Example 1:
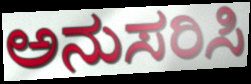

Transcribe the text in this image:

ಅನುಸರಿಸಿ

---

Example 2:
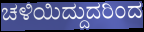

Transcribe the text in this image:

ಚಳಿಯಿದ್ದುದರಿಂದ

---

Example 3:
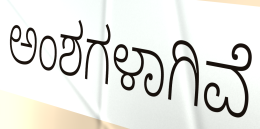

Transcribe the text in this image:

ಅಂಶಗಳಾಗಿವೆ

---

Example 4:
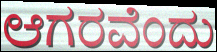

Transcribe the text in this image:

ಆಗರವೆಂದು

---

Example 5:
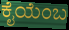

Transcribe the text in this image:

ಕೈಯೆಂಬ